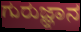
ಗುರುಜ್ಞಾನ